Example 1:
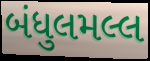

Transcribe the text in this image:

બંધુલમલ્લ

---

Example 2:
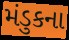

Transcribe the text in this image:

મંડુકના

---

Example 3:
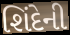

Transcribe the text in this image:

શિંદેની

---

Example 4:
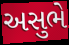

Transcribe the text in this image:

અસુભે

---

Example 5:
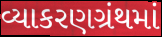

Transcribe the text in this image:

વ્યાકરણગ્રંથમાં